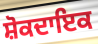
ਸ਼ੋਕਦਾਇਕ